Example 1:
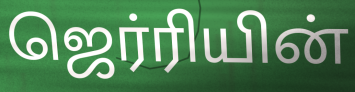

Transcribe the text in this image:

ஜெர்ரியின்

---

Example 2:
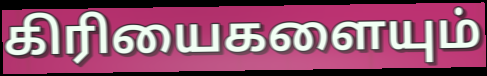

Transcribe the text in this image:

கிரியைகளையும்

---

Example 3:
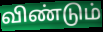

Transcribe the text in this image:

விண்டும்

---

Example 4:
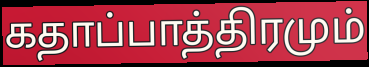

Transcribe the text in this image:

கதாப்பாத்திரமும்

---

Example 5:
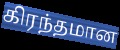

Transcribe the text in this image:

கிரந்தமான